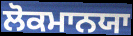
ਲੋਕਮਾਨਯਾ